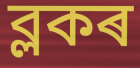
ব্লকৰ